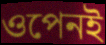
ওপেনই